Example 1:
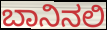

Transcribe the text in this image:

ಬಾನಿನಲಿ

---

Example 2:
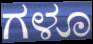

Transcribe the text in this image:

ಗಳೂ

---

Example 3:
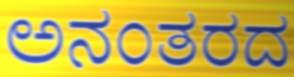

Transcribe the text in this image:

ಅನಂತರದ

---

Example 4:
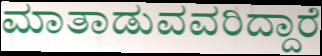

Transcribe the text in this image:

ಮಾತಾಡುವವರಿದ್ದಾರೆ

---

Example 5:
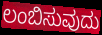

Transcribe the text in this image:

ಲಂಬಿಸುವುದು